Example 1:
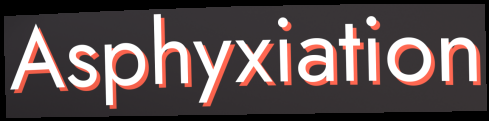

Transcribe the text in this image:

Asphyxiation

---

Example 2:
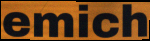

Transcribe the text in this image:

emich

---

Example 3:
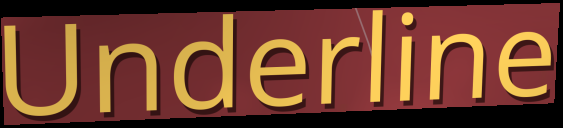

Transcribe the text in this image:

Underline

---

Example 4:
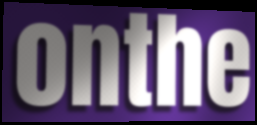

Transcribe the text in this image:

onthe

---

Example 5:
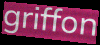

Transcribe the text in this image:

griffon